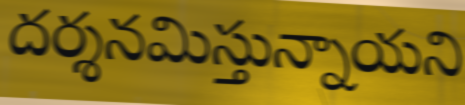
దర్శనమిస్తున్నాయని